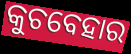
କୁଚବେହାର